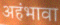
अहंभावा